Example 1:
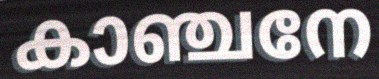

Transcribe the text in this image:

കാഞ്ചനേ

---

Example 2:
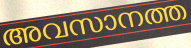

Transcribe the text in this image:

അവസാനത്ത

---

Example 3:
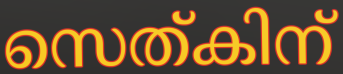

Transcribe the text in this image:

സെത്കിന്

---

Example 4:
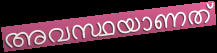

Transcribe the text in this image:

അവസ്ഥയാണത്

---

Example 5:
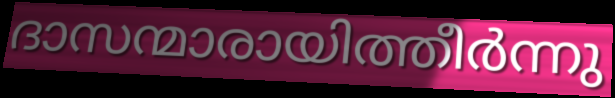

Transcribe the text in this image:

ദാസന്മാരായിത്തീർന്നു